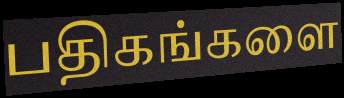
பதிகங்களை